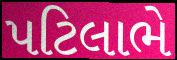
પટિલાભે